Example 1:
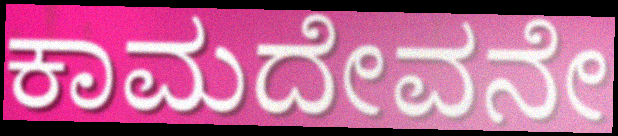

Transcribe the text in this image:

ಕಾಮದೇವನೇ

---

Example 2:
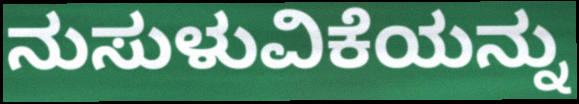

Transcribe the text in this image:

ನುಸುಳುವಿಕೆಯನ್ನು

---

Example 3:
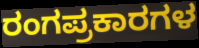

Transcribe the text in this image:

ರಂಗಪ್ರಕಾರಗಳ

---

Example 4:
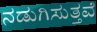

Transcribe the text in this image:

ನಡುಗಿಸುತ್ತವೆ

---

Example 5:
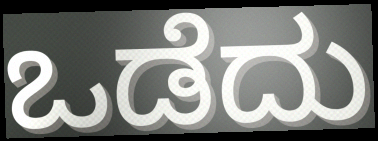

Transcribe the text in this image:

ಒಡೆದು